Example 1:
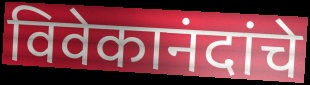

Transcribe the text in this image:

विवेकानंदांचे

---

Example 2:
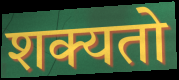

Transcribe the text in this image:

शक्यतो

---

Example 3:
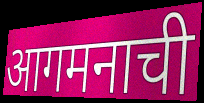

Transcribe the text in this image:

आगमनाची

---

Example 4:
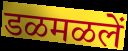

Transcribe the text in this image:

डळमळलें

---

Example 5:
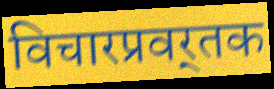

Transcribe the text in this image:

विचारप्रवर्तक